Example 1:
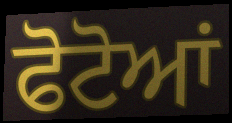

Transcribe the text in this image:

ਫੋਟੋਆਂ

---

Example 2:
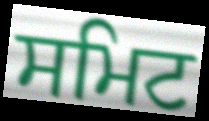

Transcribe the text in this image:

ਸਮਿਟ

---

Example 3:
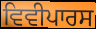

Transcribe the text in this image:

ਵਿਵੀਪਾਰਸ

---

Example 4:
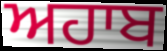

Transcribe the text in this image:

ਅਹਾਬ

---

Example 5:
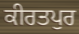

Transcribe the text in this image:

ਕੀਰਤਪੁਰ